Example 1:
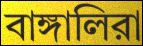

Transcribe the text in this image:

বাঙ্গালিরা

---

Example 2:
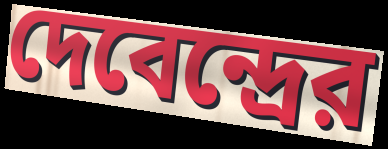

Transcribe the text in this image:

দেবেন্দ্রের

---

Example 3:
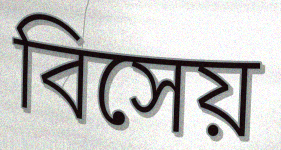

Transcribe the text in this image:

বিসেয়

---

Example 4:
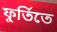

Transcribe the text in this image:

ফুর্তিতে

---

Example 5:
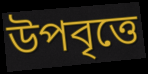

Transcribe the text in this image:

উপবৃত্তে